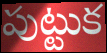
పుట్టుక